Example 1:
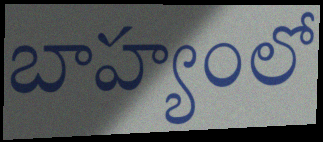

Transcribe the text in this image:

బాహ్యంలో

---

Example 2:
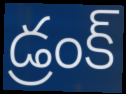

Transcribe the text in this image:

డ్రంక్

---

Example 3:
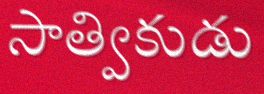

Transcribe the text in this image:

సాత్వికుడు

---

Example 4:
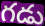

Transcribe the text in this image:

గడు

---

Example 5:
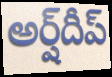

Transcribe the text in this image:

అర్ష్‌దీప్